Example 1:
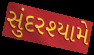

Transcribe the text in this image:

સુંદરશ્યામે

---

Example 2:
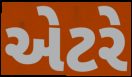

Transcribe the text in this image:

એટરે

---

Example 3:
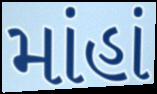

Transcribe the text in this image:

માંહાં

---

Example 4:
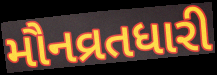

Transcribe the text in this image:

મૌનવ્રતધારી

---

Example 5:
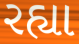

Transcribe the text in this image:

રહ્યા